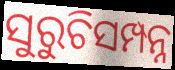
ସୁରୁଚିସମ୍ପନ୍ନ